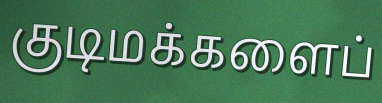
குடிமக்களைப்